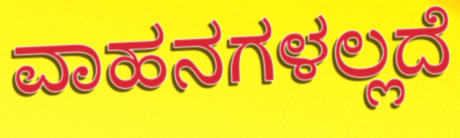
ವಾಹನಗಳಲ್ಲದೆ